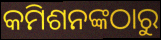
କମିଶନଙ୍କଠାରୁ